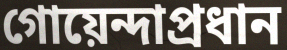
গোয়েন্দাপ্রধান